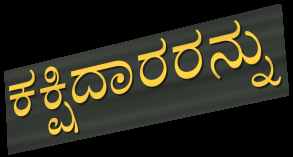
ಕಕ್ಷಿದಾರರನ್ನು